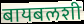
बायबलशी